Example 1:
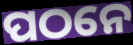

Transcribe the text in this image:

ପଠନେ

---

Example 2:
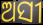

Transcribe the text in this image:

ଅସୀ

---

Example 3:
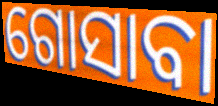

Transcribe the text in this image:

ଗୋସାବା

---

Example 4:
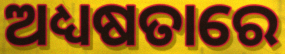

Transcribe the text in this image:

ଅଧ୍ୟଷତାରେ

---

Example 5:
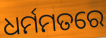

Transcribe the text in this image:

ଧର୍ମମତରେ